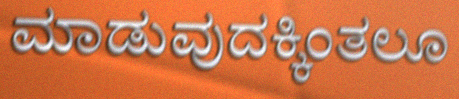
ಮಾಡುವುದಕ್ಕಿಂತಲೂ